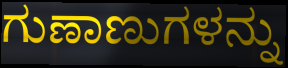
ಗುಣಾಣುಗಳನ್ನು